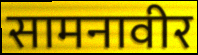
सामनावीर